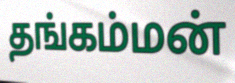
தங்கம்மன்